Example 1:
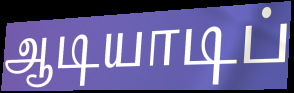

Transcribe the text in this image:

ஆடியாடிப்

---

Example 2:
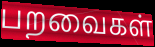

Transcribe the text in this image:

பறவைகள்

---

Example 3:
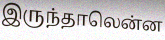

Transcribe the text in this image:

இருந்தாலென்ன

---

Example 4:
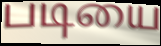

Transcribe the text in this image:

படியை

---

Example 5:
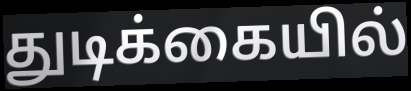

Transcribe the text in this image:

துடிக்கையில்